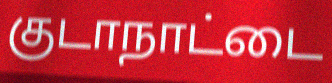
குடாநாட்டை